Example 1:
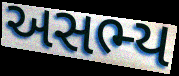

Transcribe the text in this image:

અસભ્ય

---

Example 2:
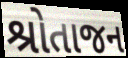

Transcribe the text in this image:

શ્રોતાજન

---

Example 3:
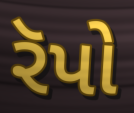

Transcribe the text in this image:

રૅપો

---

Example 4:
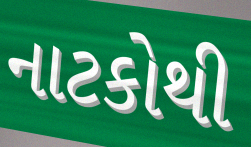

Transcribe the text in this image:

નાટકોથી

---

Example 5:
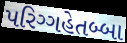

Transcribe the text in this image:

પરિગ્ગહેતબ્બા